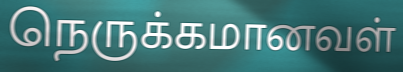
நெருக்கமானவள்